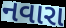
નવારા